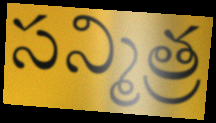
సన్మిత్ర